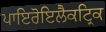
ਪਾਇਰੋਇਲੈਕਟ੍ਰਿਕ